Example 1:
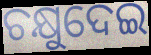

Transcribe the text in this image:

ଚକ୍ଷୁଦେଇ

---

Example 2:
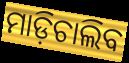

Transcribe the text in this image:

ମାଡ଼ିଚାଲିବ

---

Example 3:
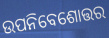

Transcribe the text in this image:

ଉପନିବେଶୋତ୍ତର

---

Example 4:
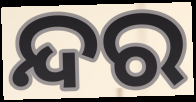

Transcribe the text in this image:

ନ୍ଦର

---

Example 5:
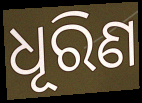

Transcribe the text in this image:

ଧୂରିଣ